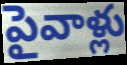
పైవాళ్లు